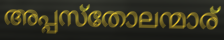
അപ്പസ്തോലന്മാര്